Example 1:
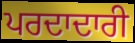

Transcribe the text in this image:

ਪਰਦਾਦਾਰੀ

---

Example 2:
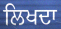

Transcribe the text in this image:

ਲਿਖਦਾ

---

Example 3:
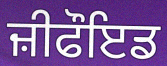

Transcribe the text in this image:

ਜ਼ੀਫੌਇਡ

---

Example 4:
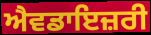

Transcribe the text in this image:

ਐਵਡਾਇਜ਼ਰੀ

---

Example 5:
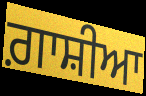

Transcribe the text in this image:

ਗ਼ਾਸ਼ੀਆ